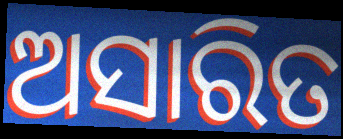
ଅସାରିତ